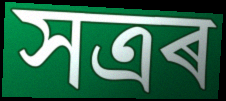
সত্ৰৰ